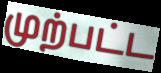
முற்பட்ட